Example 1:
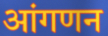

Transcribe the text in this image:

आंगणन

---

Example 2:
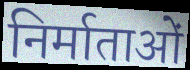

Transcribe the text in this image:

निर्माताओं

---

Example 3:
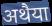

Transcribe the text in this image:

अथैया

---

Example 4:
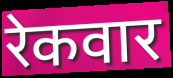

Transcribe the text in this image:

रेकवार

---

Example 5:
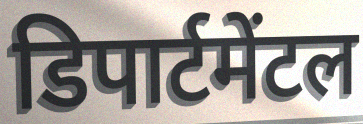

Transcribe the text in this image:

डिपार्टमेंटल